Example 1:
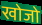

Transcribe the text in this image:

खोजो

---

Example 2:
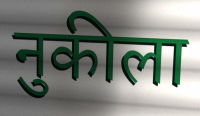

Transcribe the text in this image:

नुकीला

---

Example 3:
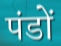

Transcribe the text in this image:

पंडों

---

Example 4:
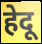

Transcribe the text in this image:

हेदू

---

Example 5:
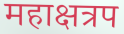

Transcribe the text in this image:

महाक्षत्रप